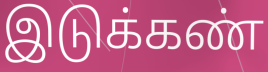
இடுக்கண்